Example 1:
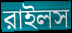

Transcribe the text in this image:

রাইলস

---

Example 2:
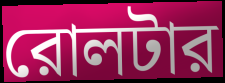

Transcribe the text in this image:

রোলটার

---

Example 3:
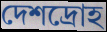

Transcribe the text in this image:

দেশদ্রোহ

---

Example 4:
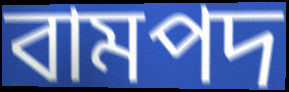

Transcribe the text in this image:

বামপদ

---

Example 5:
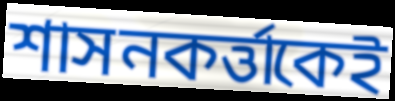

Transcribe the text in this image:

শাসনকর্ত্তাকেই